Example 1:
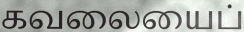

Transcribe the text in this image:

கவலையைப்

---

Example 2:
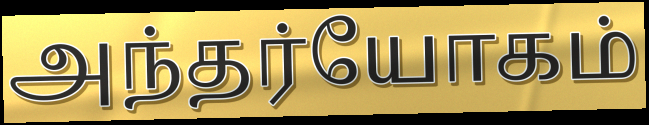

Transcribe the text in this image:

அந்தர்யோகம்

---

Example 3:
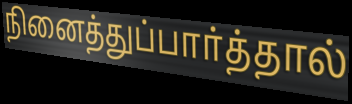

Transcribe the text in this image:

நினைத்துப்பார்த்தால்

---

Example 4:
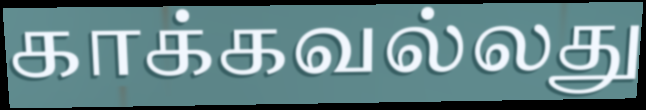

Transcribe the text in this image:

காக்கவல்லது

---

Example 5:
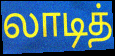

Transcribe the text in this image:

லாடித்